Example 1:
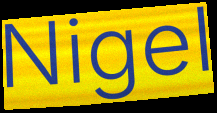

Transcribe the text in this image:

Nigel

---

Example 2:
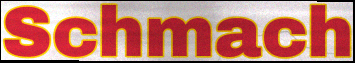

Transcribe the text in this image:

Schmach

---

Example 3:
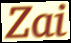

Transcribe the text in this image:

Zai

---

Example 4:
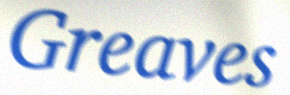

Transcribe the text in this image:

Greaves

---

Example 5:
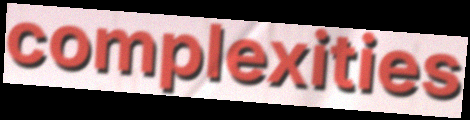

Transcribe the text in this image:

complexities